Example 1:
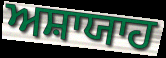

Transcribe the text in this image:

ਅਸ਼ਾਯਾਹ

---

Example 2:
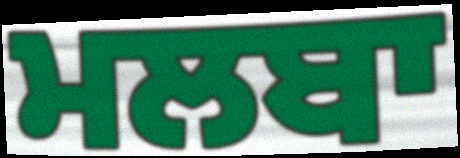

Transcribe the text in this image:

ਮਲਬਾ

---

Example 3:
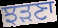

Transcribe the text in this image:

ਝੜਣਾ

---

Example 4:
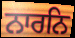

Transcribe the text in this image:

ਨਾਰਨਿ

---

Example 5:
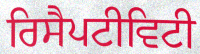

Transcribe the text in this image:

ਰਿਸੈਪਟੀਵਿਟੀ